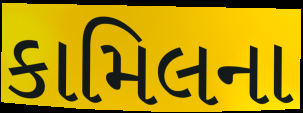
કામિલના